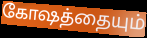
கோஷத்தையும்